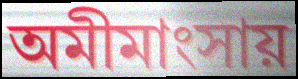
অমীমাংসায়